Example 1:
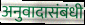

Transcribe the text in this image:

अनुवादासंबंधी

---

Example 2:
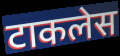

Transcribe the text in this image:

टाकलेस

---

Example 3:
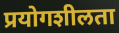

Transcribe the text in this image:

प्रयोगशीलता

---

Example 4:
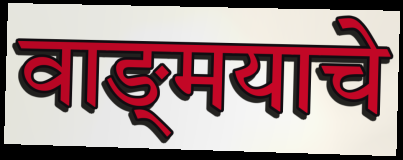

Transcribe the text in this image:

वाङ्‍मयाचे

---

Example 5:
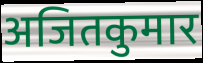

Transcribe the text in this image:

अजितकुमार